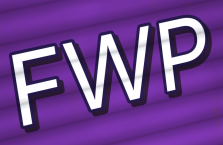
FWP